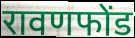
रावणफोंड